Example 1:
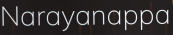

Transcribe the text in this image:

Narayanappa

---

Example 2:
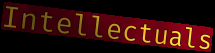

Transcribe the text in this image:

Intellectuals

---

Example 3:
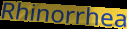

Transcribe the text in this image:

Rhinorrhea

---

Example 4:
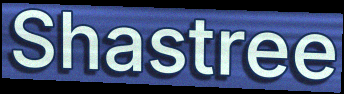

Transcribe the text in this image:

Shastree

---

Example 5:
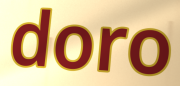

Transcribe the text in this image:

doro